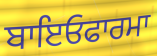
ਬਾਇਓਫਾਰਮਾ